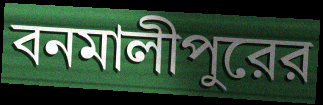
বনমালীপুরের